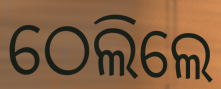
ଠେଲିଲେ